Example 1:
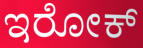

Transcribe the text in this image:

ಇರೋಕ್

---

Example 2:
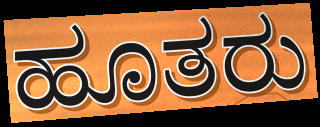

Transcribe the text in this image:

ಹೂತರು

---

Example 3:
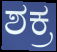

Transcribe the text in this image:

ಶಕ್ರ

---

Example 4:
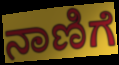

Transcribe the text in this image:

ನಾಣಿಗೆ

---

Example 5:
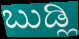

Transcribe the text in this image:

ಬುಡ್ಲಿ